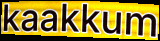
kaakkum